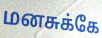
மனசுக்கே